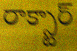
రాక్స్టార్